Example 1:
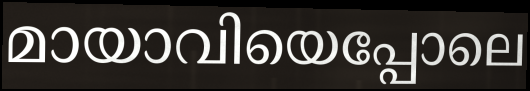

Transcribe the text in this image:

മായാവിയെപ്പോലെ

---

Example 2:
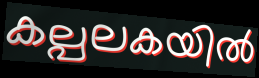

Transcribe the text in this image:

കല്പലകയിൽ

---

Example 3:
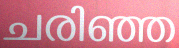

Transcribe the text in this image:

ചരിഞ്ഞ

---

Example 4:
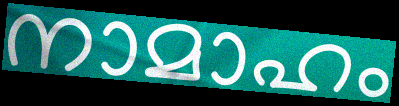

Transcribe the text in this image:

നാമാഹം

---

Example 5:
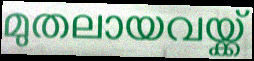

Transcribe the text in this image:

മുതലായവയ്ക്ക്